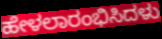
ಹೇಳಲಾರಂಭಿಸಿದಳು